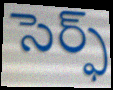
సెర్ఫ్